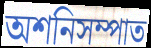
অশনিসম্পাত